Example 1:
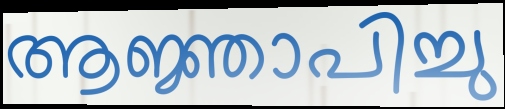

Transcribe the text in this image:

ആജ്ഞാപിച്ചു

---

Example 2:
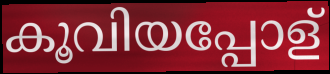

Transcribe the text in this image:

കൂവിയപ്പോള്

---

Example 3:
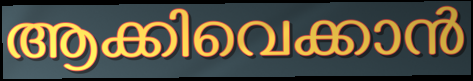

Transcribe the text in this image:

ആക്കിവെക്കാൻ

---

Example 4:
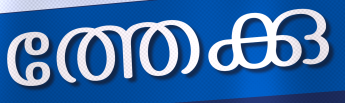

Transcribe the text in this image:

ത്തേക്കു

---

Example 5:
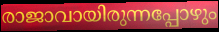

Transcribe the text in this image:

രാജാവായിരുന്നപ്പോഴും